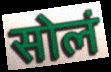
सोलं